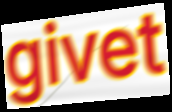
givet